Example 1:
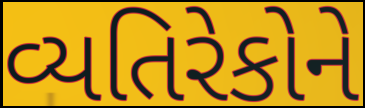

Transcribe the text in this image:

વ્યતિરેકોને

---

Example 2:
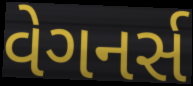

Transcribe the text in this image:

વેગનર્સ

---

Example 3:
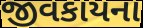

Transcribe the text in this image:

જીવકાયના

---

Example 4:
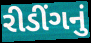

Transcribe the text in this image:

રીડીંગનું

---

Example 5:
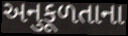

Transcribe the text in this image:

અનુકૂળતાના